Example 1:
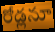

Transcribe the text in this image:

రోడ్లనూ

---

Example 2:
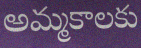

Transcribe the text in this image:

అమ్మకాలకు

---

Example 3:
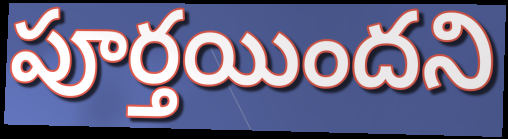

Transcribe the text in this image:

పూర్తయిందని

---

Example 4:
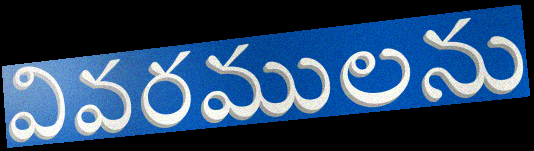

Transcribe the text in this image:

వివరములను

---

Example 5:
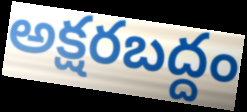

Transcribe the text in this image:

అక్షరబద్దం